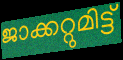
ജാക്കറ്റുമിട്ട്